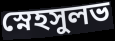
স্নেহসুলভ